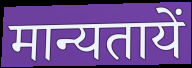
मान्यतायें